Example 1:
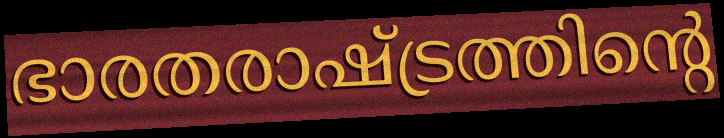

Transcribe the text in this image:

ഭാരതരാഷ്ട്രത്തിന്റെ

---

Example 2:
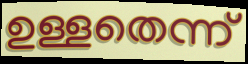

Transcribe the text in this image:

ഉള്ളതെന്ന്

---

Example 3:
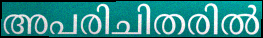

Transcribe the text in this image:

അപരിചിതരിൽ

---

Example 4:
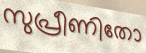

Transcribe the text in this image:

സുപ്രീണിതോ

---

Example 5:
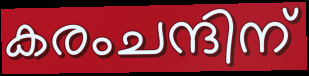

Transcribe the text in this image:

കരംചന്ദിന്